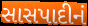
સાસપાદીનં